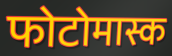
फोटोमास्क